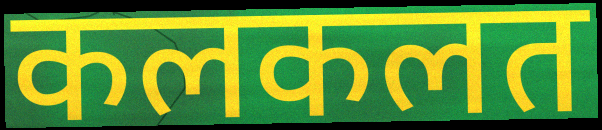
कलकलत